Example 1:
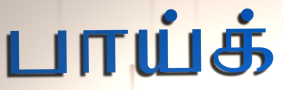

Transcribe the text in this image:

பாய்க்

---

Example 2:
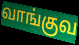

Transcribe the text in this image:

வாங்குவ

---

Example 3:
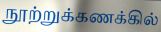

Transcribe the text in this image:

நூற்றுக்கணக்கில்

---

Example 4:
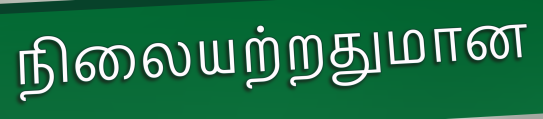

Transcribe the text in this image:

நிலையற்றதுமான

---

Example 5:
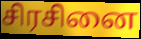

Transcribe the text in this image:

சிரசினை